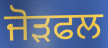
ਜੋੜਫਲ